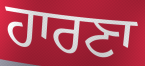
ਹਾਰਣਾ